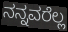
ನನ್ನವರೆಲ್ಲ